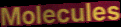
Molecules